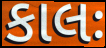
કાલઃ